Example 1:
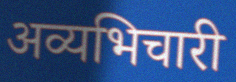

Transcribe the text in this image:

अव्यभिचारी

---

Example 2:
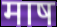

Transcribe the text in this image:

माष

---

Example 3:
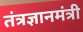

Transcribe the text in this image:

तंत्रज्ञानमंत्री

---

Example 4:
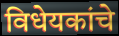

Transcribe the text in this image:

विधेयकांचे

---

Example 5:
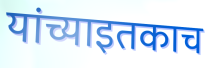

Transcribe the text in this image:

यांच्याइतकाच